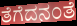
ತೆಗೆದನಂತೆ